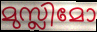
മുസ്ലിമോ